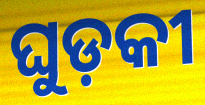
ଘୁଡ଼କୀ